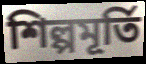
শিল্পমূর্তি